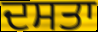
ਦਸਤਾ